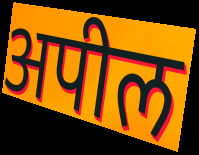
अपील